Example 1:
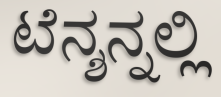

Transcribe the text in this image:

ಟೆನ್ಶನ್ನಲ್ಲಿ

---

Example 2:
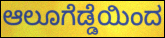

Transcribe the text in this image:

ಆಲೂಗೆಡ್ಡೆಯಿಂದ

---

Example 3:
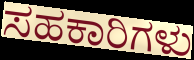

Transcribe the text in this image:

ಸಹಕಾರಿಗಳು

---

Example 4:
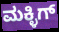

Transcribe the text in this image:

ಮಕ್ಳಿಗ್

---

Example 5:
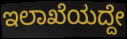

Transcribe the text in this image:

ಇಲಾಖೆಯದ್ದೇ